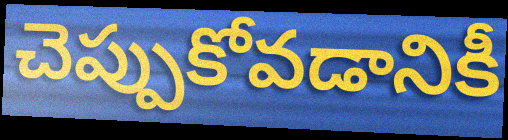
చెప్పుకోవడానికీ